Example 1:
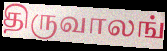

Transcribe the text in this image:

திருவாலங்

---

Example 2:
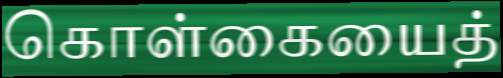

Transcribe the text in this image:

கொள்கையைத்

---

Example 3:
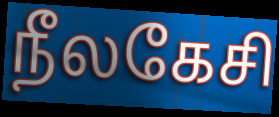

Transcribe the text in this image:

நீலகேசி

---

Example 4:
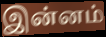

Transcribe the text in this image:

இன்னம்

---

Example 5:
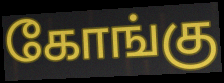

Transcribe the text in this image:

கோங்கு